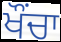
ਖੌੰਚਾ